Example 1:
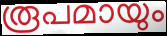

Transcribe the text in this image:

രൂപമായും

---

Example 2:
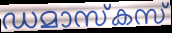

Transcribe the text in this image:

ഡമാസ്കസ്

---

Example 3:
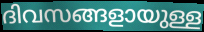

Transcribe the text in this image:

ദിവസങ്ങളായുള്ള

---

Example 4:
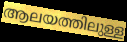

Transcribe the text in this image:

ആലയത്തിലുള്ള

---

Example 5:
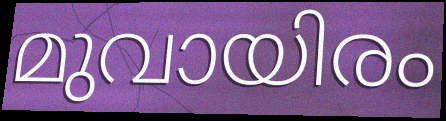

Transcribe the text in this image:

മുവായിരം